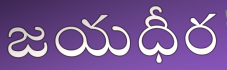
జయధీర